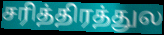
சரித்திரத்துல